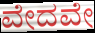
ವೇದವೇ